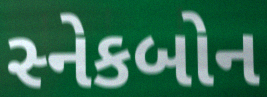
સ્નેકબોન